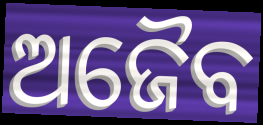
ଅଜୈବ